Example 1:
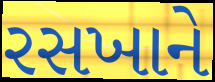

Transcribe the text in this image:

રસખાને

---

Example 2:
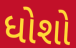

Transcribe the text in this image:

ધોશો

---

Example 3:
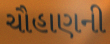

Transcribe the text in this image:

ચૌહાણની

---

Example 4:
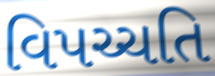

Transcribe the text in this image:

વિપચ્ચતિ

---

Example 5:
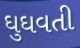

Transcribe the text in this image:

ઘુઘવતી